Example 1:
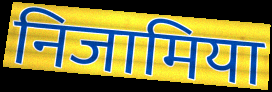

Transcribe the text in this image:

निजामिया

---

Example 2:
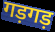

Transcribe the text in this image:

गड़गड़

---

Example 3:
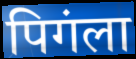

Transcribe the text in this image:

पिगंला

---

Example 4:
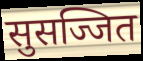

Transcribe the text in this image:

सुसज्जित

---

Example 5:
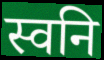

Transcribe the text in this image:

स्वनि